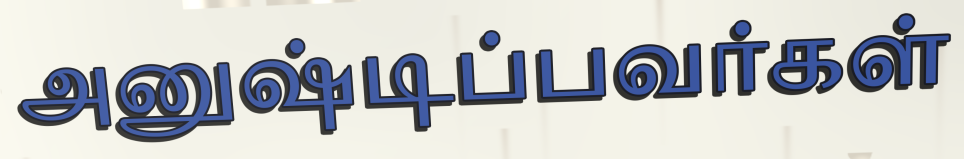
அனுஷ்டிப்பவர்கள்